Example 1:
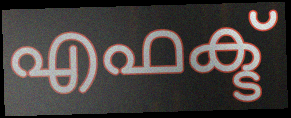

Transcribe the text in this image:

എഫക്ട്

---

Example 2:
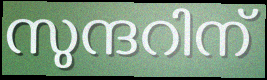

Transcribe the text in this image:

സുന്ദറിന്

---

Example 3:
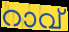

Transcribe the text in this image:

റാവ്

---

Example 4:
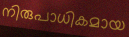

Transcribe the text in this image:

നിരുപാധികമായ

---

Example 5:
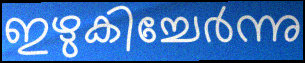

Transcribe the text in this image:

ഇഴുകിച്ചേർന്നു